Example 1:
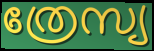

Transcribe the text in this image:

ത്രേസ്യ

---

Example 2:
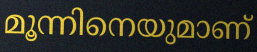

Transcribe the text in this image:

മൂന്നിനെയുമാണ്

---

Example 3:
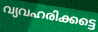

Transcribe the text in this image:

വ്യവഹരിക്കട്ടെ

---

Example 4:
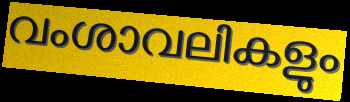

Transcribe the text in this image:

വംശാവലികളും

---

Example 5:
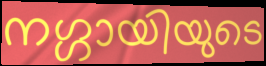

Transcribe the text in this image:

നഗ്ഗായിയുടെ